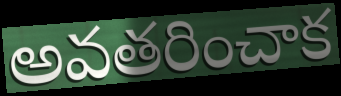
అవతరించాక